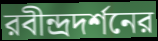
রবীন্দ্রদর্শনের